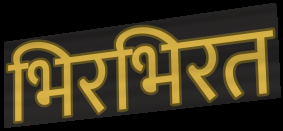
भिरभिरत